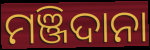
ମଞ୍ଜିଦାନା